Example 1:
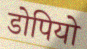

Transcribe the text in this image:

डोपियो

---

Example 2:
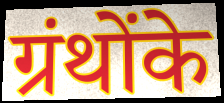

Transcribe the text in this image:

ग्रंथोंके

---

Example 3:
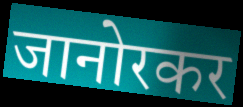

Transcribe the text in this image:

जानोरकर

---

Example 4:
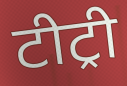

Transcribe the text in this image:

टीट्री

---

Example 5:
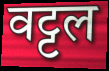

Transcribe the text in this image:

वट्टल